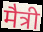
मैत्री